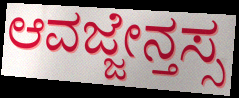
ಆವಜ್ಜೇನ್ತಸ್ಸ